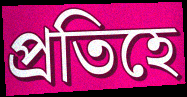
প্ৰতিহে